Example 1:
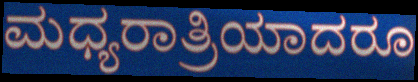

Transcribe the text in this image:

ಮಧ್ಯರಾತ್ರಿಯಾದರೂ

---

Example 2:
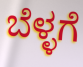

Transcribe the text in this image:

ಬೆಳ್ಳಗೆ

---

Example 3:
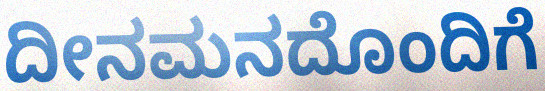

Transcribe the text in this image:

ದೀನಮನದೊಂದಿಗೆ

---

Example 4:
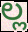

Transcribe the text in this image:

ಲ್ಲ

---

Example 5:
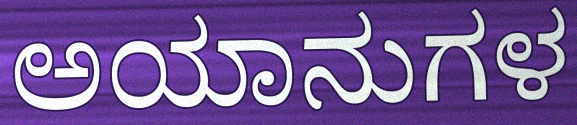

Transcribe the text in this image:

ಅಯಾನುಗಳ